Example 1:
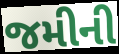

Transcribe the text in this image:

જમીની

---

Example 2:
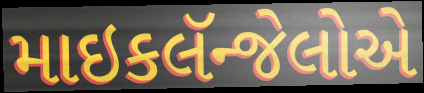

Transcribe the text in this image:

માઇકલૅન્જેલોએ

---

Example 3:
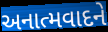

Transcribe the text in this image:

અનાત્મવાદને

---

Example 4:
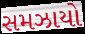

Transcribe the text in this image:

સમઝાયો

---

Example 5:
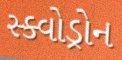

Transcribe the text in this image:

સ્ક્વોડ્રોન